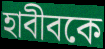
হাবীবকে